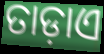
ତାଡ଼ାଏ